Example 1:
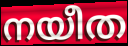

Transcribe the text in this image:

നയീത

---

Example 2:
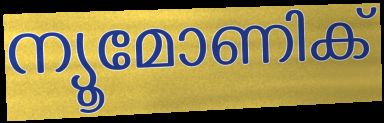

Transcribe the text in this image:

ന്യൂമോണിക്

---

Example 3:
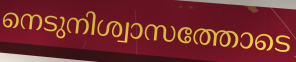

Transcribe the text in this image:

നെടുനിശ്വാസത്തോടെ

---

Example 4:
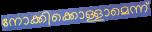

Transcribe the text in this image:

നോക്കിക്കൊള്ളാമെന്ന്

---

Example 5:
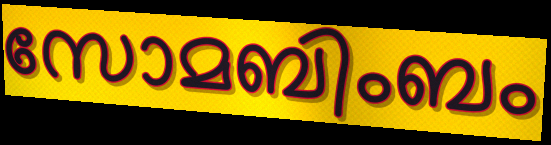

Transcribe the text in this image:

സോമബിംബം